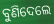
ବୁଣିଦେଲେ